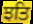
ਝਤਿ